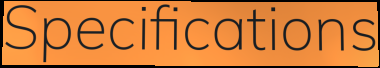
Specifications